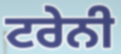
ਟਰੇਨੀ